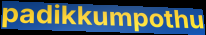
padikkumpothu